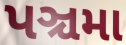
પઞ્ચમા